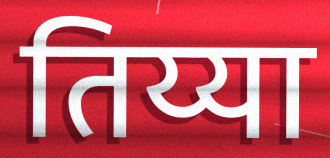
तिय्या